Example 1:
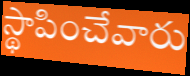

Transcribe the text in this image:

స్థాపించేవారు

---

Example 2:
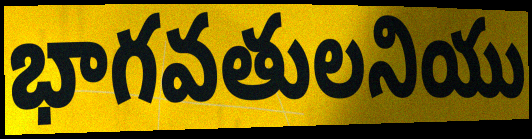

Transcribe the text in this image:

భాగవతులనియు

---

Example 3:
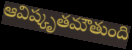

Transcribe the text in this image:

ఆవిష్కృతమౌతుంది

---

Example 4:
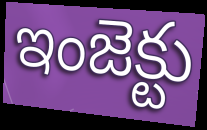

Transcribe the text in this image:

ఇంజెక్టు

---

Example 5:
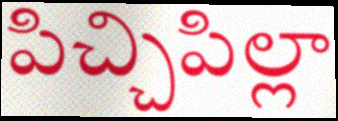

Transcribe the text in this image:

పిచ్చిపిల్లా